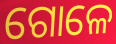
ଗୋଳେ